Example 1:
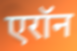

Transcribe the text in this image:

एरॉन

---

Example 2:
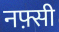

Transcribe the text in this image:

नफ़्सी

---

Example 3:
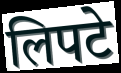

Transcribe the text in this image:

लिपटे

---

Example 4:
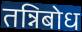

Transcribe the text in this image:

तन्निबोध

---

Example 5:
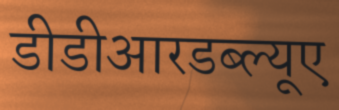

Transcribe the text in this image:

डीडीआरडब्ल्यूए